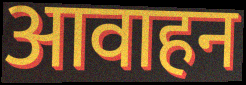
आवाहन